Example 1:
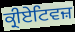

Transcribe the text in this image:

ਕ੍ਰੀਏਟਿਵਜ਼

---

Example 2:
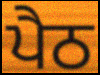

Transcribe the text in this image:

ਪੈਠ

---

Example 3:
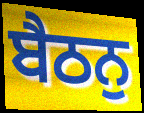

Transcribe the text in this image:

ਬੈਠਨੁ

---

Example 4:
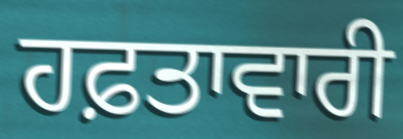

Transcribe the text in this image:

ਹਫ਼ਤਾਵਾਰੀ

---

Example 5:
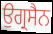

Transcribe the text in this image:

ਉਗ੍ਰਸੈਨ